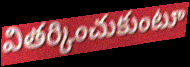
వితర్కించుకుంటూ